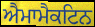
ਐਮਾਮੈਕਟਿਨ